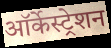
ऑर्केस्ट्रेशन